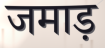
जमाड़